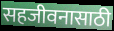
सहजीवनासाठी